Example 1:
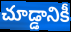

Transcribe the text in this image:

చూడ్డానికీ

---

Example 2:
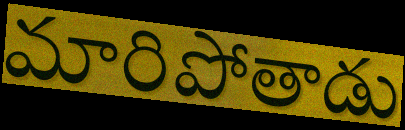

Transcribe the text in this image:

మారిపోతాడు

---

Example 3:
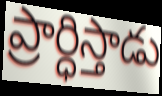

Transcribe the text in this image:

ప్రార్ధిస్తాడు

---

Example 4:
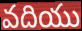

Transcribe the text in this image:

వదియు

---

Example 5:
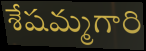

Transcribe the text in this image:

శేషమ్మగారి